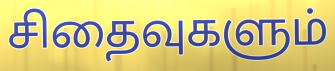
சிதைவுகளும்